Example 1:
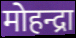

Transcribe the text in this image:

मोहन्द्रा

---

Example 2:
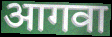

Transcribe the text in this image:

आगवा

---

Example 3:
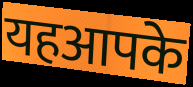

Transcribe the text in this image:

यहआपके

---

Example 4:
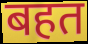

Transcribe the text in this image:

बहत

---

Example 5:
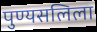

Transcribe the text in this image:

पुण्यसलिला